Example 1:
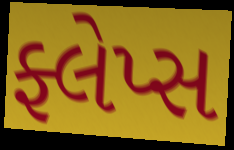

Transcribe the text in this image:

ફ્લેપ્સ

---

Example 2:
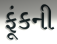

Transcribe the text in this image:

ફૂંકની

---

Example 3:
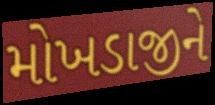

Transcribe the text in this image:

મોખડાજીને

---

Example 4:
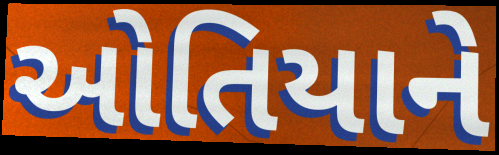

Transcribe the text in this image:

ઓતિયાને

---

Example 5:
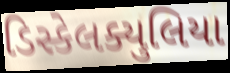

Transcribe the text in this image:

ડિસ્કેલક્યુલિયા